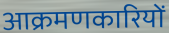
आक्रमणकारियों